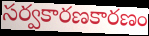
సర్వకారణకారణం